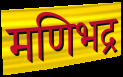
मणिभद्र